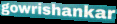
gowrishankar